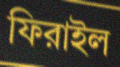
ফিরাইল